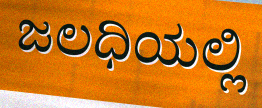
ಜಲಧಿಯಲ್ಲಿ